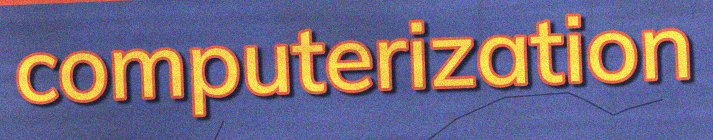
computerization